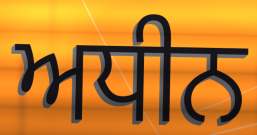
ਅਧੀਨ